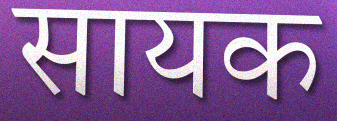
सायक